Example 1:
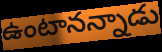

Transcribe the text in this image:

ఉంటానన్నాడు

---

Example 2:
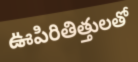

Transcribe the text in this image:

ఊపిరితిత్తులతో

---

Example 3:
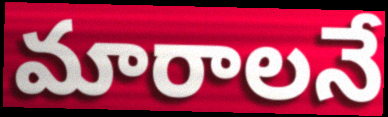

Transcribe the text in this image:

మారాలనే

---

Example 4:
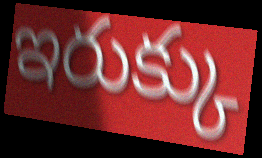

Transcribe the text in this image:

ఇరుక్కు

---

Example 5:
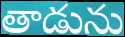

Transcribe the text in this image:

తాడును